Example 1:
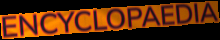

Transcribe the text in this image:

ENCYCLOPAEDIA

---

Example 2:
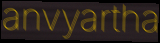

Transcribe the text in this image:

anvyartha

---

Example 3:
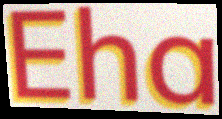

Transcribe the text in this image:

Eha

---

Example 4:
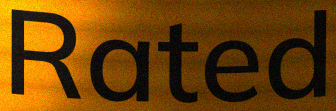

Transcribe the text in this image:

Rated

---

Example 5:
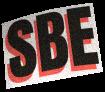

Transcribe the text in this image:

SBE